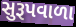
સુરૂપવાળા